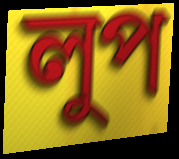
লুপ